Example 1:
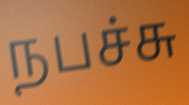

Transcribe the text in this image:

நபச்சு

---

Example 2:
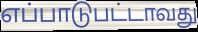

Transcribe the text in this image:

எப்பாடுபட்டாவது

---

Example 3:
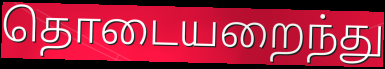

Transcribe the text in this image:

தொடையறைந்து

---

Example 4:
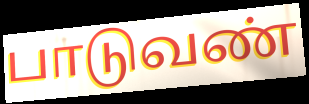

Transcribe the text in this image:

பாடுவண்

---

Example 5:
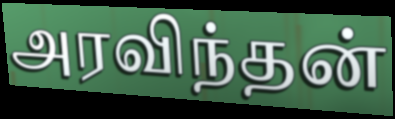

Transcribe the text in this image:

அரவிந்தன்